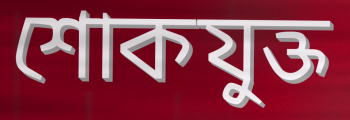
শোকযুক্ত